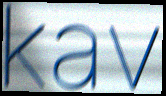
kav